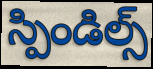
స్పిండిల్స్